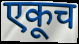
एकूच